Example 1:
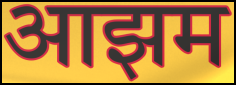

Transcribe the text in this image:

आझम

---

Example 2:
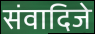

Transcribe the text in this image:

संवादिजे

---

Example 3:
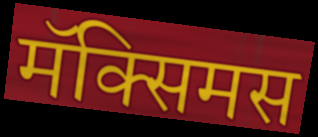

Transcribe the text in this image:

मॅक्सिमस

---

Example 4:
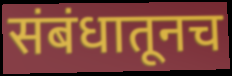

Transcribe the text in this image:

संबंधातूनच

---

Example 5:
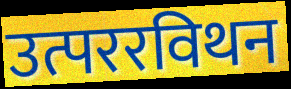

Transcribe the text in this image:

उत्पररविथन